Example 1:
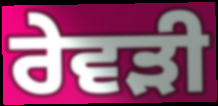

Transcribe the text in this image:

ਰੇਵੜੀ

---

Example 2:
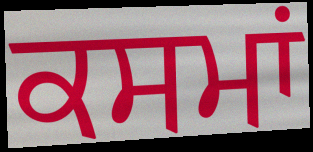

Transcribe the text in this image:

ਕਸਮਾਂ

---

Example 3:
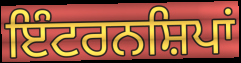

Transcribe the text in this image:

ਇੰਟਰਨਸ਼ਿਪਾਂ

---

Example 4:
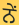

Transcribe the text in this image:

ਨੇਂ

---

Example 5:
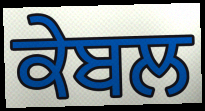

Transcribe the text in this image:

ਕੇਬਲ